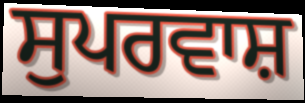
ਸੁਪਰਵਾਸ਼